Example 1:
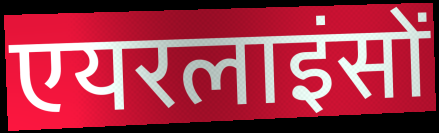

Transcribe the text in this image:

एयरलाइंसों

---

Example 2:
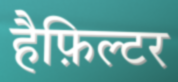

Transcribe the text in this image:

हैफ़िल्टर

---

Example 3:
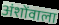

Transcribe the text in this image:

अंशोंवाला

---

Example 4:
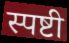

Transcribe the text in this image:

स्पष्टी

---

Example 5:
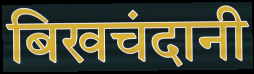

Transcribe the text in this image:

बिखचंदानी